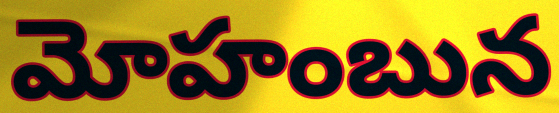
మోహంబున